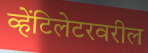
व्हेंटिलेटरवरील